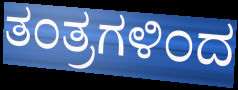
ತಂತ್ರಗಳಿಂದ